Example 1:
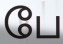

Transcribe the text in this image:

பே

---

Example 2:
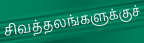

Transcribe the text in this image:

சிவத்தலங்களுக்குச்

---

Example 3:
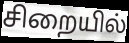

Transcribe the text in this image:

சிறையில்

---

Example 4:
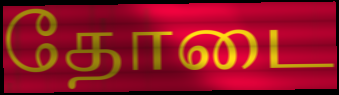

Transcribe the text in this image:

தோடை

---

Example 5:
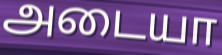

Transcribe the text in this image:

அடையா